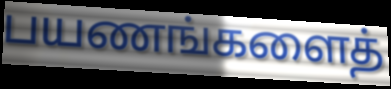
பயணங்களைத்